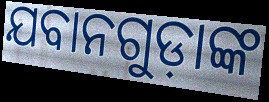
ଯବାନଗୁଡ଼ାଙ୍କ